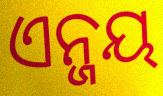
ଏନ୍ଜୟ